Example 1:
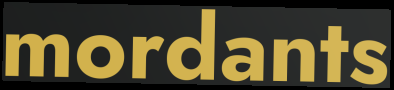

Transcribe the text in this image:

mordants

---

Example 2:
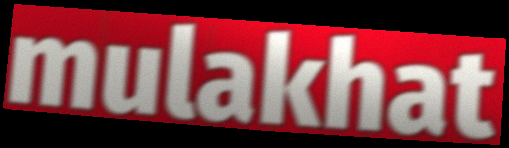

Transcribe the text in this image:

mulakhat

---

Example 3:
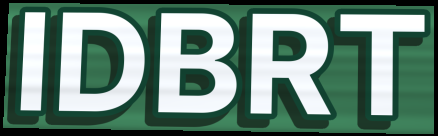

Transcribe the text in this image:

IDBRT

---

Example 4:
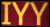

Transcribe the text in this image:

IYY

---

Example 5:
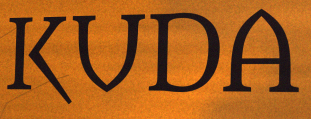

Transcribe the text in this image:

KUDA